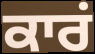
ਕਾਰਂ